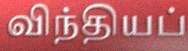
விந்தியப்